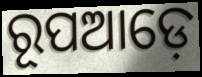
ରୂପଆଡ଼େ